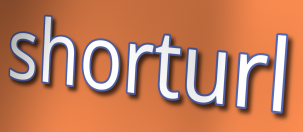
shorturl